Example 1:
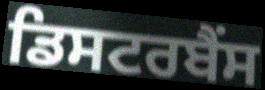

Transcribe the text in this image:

ਡਿਸਟਰਬੈਂਸ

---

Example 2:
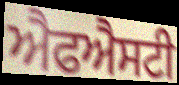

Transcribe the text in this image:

ਐਫਐਸਟੀ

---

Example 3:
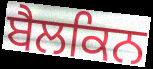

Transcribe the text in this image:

ਬੈਲਕਿਨ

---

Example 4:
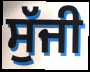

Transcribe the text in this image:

ਸੁੱਜੀ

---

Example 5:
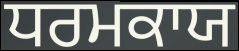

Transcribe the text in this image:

ਧਰਮਕਾਯ